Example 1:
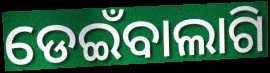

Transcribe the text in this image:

ଡେଇଁବାଲାଗି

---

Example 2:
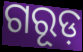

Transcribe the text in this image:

ଗରୂଡ଼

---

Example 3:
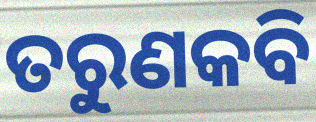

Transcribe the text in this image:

ତରୁଣକବି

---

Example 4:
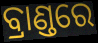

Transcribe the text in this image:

ବ୍ରାଣ୍ଡରେ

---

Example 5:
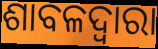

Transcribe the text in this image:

ଶାବଳଦ୍ୱାରା